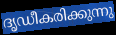
ദൃഡീകരിക്കുന്നു